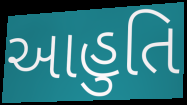
આહુતિ